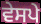
ਵੇਸਪੇ